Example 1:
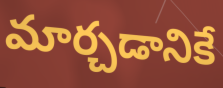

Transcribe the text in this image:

మార్చడానికే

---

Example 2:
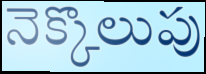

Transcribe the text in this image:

నెక్కొలుపు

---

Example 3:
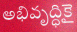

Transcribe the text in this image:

అభివృద్ధికై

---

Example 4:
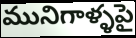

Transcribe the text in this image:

మునిగాళ్ళపై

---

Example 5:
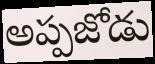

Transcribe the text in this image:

అప్పజోడు